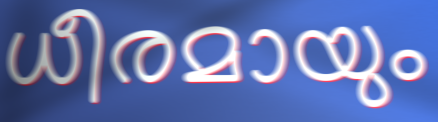
ധീരമായും